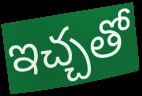
ఇచ్చతో